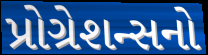
પ્રોગ્રેશન્સનો